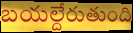
బయల్దేరుతుంది